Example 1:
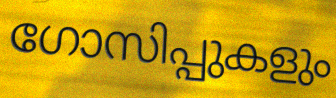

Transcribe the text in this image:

ഗോസിപ്പുകളും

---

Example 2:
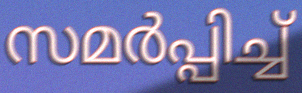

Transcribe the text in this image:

സമർപ്പിച്ച്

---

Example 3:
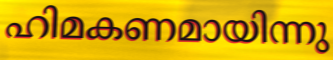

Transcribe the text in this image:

ഹിമകണമായിന്നു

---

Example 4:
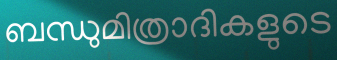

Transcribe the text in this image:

ബന്ധുമിത്രാദികളുടെ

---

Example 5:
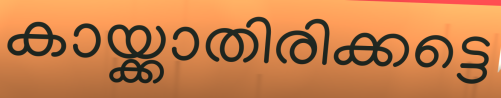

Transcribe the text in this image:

കായ്ക്കാതിരിക്കട്ടെ